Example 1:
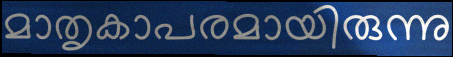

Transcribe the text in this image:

മാതൃകാപരമായിരുന്നു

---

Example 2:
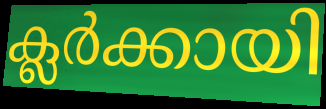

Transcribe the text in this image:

ക്ലർക്കായി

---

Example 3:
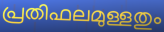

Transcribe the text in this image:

പ്രതിഫലമുള്ളതും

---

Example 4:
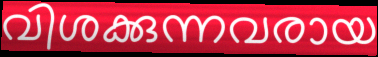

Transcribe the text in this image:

വിശക്കുന്നവരായ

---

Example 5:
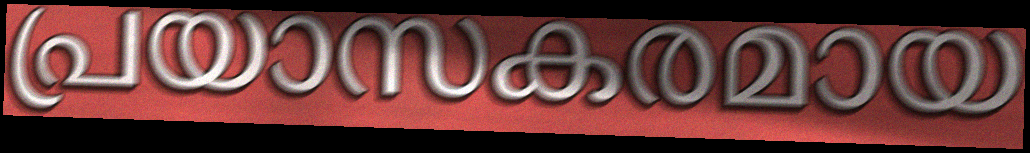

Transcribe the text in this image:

പ്രയാസകരമായ